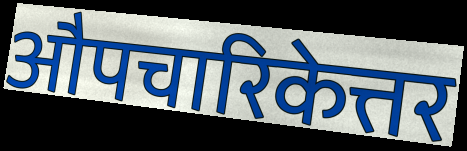
औपचारिकेत्तर